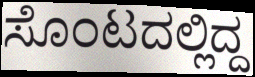
ಸೊಂಟದಲ್ಲಿದ್ದ